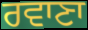
ਰਵਾਣਾ